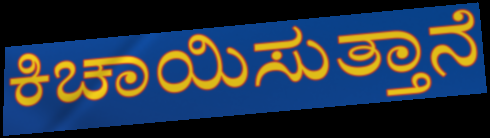
ಕಿಚಾಯಿಸುತ್ತಾನೆ